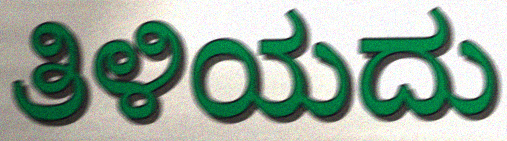
ತಿಳಿಯದು